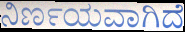
ನಿರ್ಣಯವಾಗಿದೆ